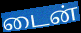
டைன்